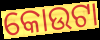
କୋଉଟା